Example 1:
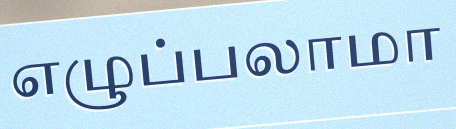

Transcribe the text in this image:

எழுப்பலாமா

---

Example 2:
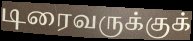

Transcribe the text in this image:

டிரைவருக்குக்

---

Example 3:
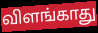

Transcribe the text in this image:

விளங்காது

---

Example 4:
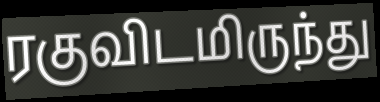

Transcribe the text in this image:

ரகுவிடமிருந்து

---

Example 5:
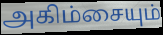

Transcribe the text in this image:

அகிம்சையும்